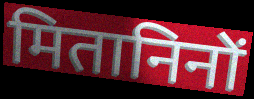
मितानिनों